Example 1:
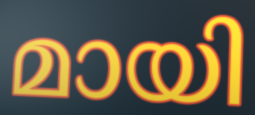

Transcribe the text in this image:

മായി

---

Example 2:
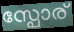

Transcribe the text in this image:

സ്പോര്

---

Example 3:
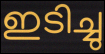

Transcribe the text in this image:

ഇടിച്ചു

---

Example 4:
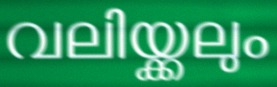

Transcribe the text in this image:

വലിയ്ക്കലും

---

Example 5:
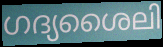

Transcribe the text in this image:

ഗദ്യശൈലി